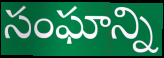
సంఘాన్ని